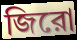
জিরো